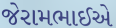
જેરામભાઈએ